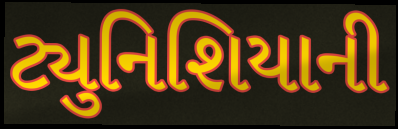
ટ્યુનિશિયાની